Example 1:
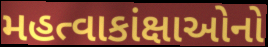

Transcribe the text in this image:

મહત્વાકાંક્ષાઓનો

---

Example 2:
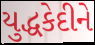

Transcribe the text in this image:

યુદ્ધકેદીને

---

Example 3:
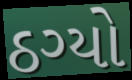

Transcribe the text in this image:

ઠગ્યો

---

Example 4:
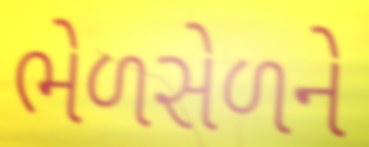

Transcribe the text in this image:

ભેળસેળને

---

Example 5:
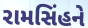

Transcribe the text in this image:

રામસિંહને